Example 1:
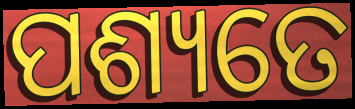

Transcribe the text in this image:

ପଶ୍ୟତେ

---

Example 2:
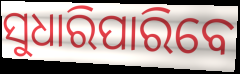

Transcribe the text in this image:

ସୁଧାରିପାରିବେ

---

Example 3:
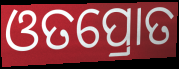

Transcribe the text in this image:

ଓତପ୍ରୋତ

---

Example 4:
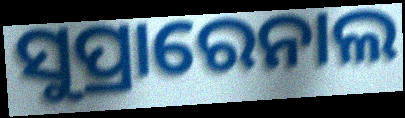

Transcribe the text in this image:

ସୁପ୍ରାରେନାଲ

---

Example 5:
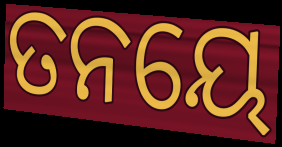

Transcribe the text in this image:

ତନୟେ